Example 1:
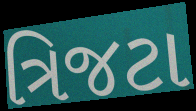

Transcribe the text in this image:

ત્રિજટા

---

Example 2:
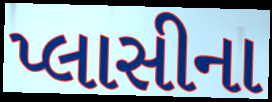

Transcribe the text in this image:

પ્લાસીના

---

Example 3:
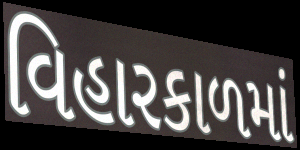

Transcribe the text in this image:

વિહારકાળમાં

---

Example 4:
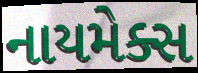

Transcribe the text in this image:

નાયમેક્સ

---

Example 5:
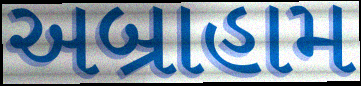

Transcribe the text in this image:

અબ્રાહામ